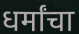
धर्मांचा